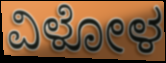
ವಿಳೋಳ